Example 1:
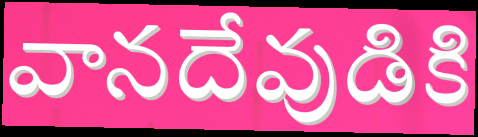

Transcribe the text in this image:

వానదేవుడికి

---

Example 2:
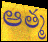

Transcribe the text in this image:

ఆత్మ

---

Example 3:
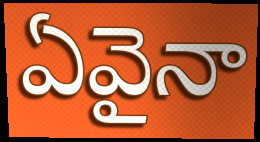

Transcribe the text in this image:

ఏవైనా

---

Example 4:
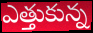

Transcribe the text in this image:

ఎత్తుకున్న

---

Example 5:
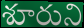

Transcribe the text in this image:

శూరుని